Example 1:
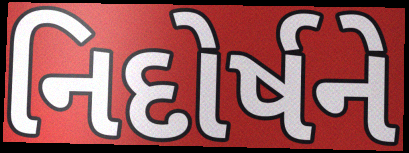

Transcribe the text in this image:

નિદોર્ષને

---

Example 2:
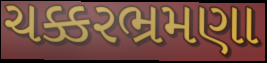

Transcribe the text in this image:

ચક્કરભ્રમણા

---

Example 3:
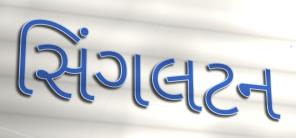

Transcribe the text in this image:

સિંગલટન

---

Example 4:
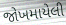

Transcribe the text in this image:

જોખમાયેલી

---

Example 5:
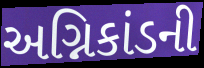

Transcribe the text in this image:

અગ્નિકાંડની